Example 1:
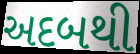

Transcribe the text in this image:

અદબથી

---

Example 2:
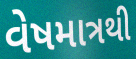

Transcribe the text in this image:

વેષમાત્રથી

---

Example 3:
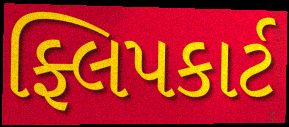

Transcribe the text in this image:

ફ્લિપકાર્ટ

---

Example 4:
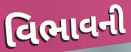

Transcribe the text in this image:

વિભાવની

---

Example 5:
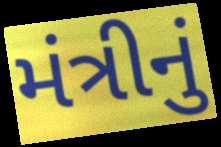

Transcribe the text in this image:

મંત્રીનું